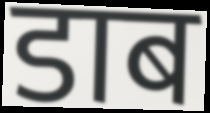
डाब